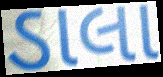
ડાલા